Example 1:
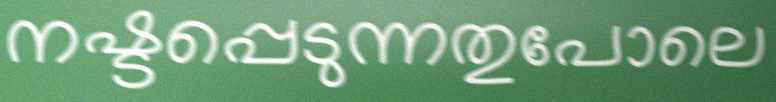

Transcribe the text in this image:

നഷ്ടപ്പെടുന്നതുപോലെ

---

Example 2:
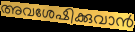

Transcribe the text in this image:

അവശേഷിക്കുവാൻ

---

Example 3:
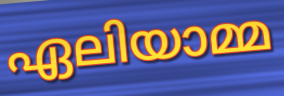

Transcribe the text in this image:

ഏലിയാമ്മ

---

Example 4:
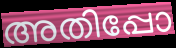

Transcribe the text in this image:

അതിപ്പോ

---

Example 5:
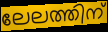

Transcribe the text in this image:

ലേലത്തിന്